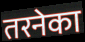
तरनेका